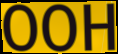
OOH